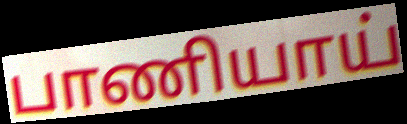
பாணியாய்